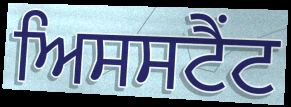
ਅਿਸਸਟੈਂਟ